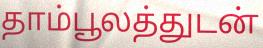
தாம்பூலத்துடன்